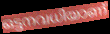
ഒട്ടനവധിയാണ്